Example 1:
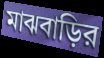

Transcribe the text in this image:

মাঝবাড়ির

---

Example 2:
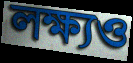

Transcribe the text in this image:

লক্ষ্যও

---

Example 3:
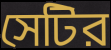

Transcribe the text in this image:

সেটির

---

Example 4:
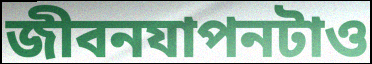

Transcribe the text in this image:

জীবনযাপনটাও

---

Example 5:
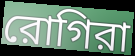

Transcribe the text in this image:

রোগিরা